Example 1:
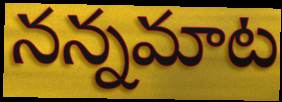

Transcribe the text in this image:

నన్నమాట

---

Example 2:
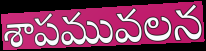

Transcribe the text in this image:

శాపమువలన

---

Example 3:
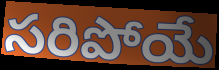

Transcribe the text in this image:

సరిపోయే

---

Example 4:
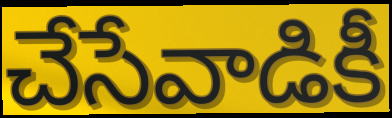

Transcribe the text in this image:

చేసేవాడికీ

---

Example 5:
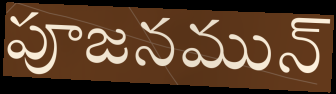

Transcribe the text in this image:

పూజనమున్